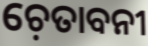
ଚ଼େତାବନୀ